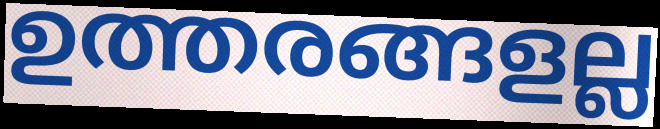
ഉത്തരങ്ങളല്ല